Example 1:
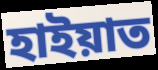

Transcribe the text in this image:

হাইয়াত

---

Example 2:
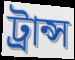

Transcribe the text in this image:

ট্রান্স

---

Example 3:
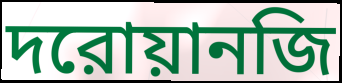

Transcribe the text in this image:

দরোয়ানজি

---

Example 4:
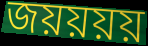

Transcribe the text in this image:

জয়য়য়য়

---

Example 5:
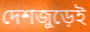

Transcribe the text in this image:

দেশজুড়েই